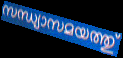
സന്ധ്യാസമയത്തു്